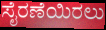
ಸೈರಣೆಯಿರಲು